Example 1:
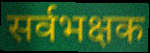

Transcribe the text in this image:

सर्वभक्षक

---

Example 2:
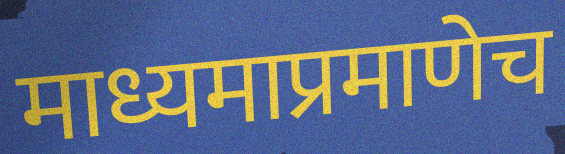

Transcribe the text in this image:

माध्यमाप्रमाणेच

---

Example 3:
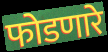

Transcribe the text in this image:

फोडणारे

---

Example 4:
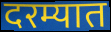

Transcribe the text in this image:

दरम्यात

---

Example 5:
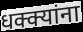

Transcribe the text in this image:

धक्क्यांना